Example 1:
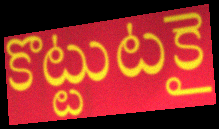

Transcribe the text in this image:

కొట్టుటకై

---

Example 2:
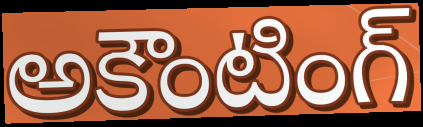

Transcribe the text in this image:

అకౌంటింగ్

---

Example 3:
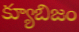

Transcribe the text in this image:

క్యూబిజం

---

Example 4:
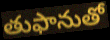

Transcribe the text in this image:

తుఫానుతో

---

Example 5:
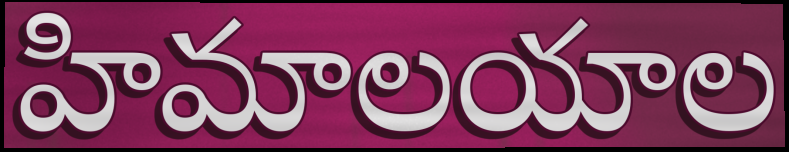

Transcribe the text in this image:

హిమాలయాల